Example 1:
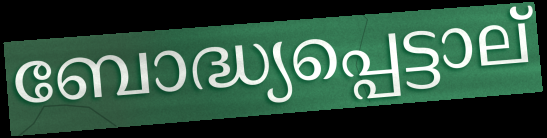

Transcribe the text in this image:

ബോദ്ധ്യപ്പെട്ടാല്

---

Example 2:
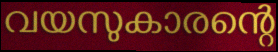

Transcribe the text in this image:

വയസുകാരന്റെ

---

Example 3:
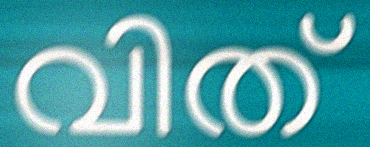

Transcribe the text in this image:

വിത്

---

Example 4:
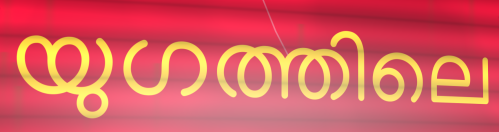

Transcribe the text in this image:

യുഗത്തിലെ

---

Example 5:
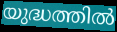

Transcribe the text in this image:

യുദ്ധത്തിൽ